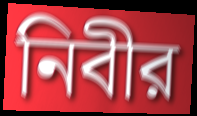
নিবীর